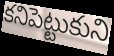
కనిపెట్టుకుని